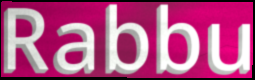
Rabbu